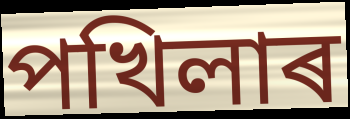
পখিলাৰ